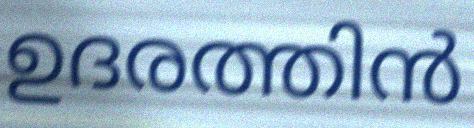
ഉദരത്തിൻ